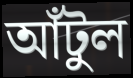
আঁটুল